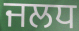
ਜਲਧ